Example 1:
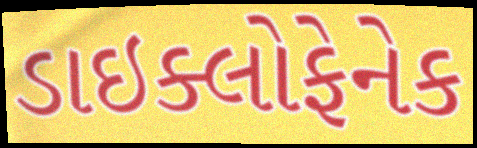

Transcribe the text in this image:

ડાઇક્લોફેનેક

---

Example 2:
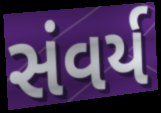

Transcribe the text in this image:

સંવર્ય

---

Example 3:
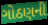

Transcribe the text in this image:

ગોઠણની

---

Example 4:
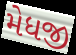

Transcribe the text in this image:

મેધજી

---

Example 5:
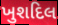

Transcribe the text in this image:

ખુશદિલ